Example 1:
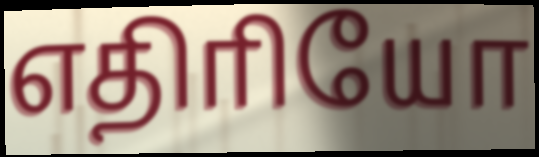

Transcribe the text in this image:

எதிரியோ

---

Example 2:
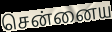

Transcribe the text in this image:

சென்னைய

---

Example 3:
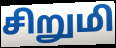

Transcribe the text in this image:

சிறுமி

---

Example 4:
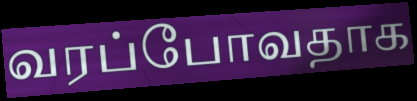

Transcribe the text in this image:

வரப்போவதாக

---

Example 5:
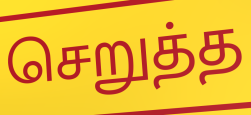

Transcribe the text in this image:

செறுத்த